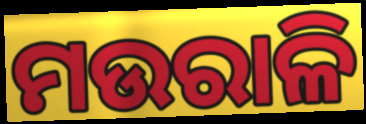
ମଉରାଳି